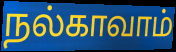
நல்காவாம்